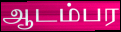
ஆடம்பர